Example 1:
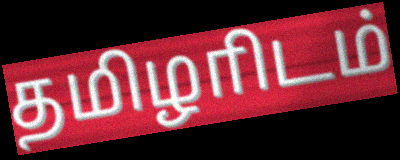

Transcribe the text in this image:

தமிழரிடம்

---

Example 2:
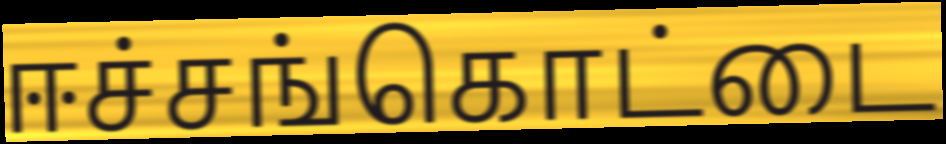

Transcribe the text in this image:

ஈச்சங்கொட்டை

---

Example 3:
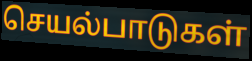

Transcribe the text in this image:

செயல்பாடுகள்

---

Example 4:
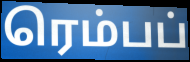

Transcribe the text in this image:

ரெம்பப்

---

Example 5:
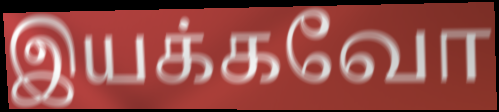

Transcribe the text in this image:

இயக்கவோ